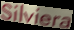
Silviera